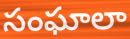
సంఘాలా